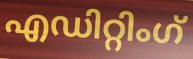
എഡിറ്റിംഗ്